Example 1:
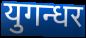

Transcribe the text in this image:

युगन्धर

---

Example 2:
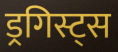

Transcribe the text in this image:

ड्रगिस्ट्स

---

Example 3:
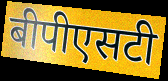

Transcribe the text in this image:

बीपीएसटी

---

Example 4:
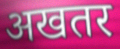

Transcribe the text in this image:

अखतर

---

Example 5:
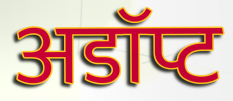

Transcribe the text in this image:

अडॉप्‍ट